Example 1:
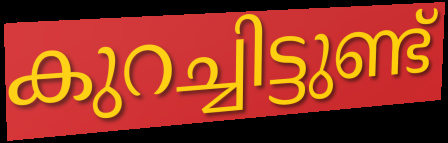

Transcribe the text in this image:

കുറച്ചിട്ടുണ്ട്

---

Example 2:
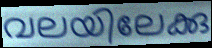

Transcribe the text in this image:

വലയിലേക്കു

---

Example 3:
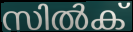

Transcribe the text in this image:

സിൽക്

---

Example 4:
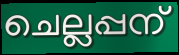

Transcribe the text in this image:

ചെല്ലപ്പന്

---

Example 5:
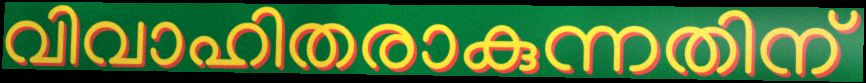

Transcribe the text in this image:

വിവാഹിതരാകുന്നതിന്